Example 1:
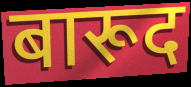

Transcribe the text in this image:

बारूद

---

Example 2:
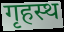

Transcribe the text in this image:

गृहस्‍थ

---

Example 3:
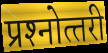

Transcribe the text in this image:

प्रश्‍नोत्‍तरी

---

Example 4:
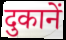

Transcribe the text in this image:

दुकानें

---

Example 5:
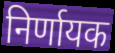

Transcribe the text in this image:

निर्णायक